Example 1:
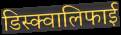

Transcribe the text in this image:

डिस्क्वालिफाई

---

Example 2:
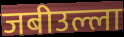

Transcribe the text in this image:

जबीउल्ला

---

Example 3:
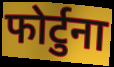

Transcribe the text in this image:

फोर्टुना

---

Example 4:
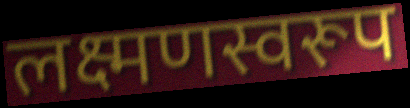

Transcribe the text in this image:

लक्ष्मणस्वरूप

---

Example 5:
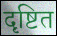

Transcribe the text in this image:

दृष्टित